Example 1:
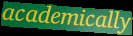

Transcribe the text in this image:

academically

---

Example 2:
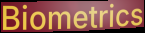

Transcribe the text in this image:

Biometrics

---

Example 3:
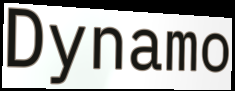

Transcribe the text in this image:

Dynamo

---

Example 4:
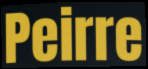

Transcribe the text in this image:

Peirre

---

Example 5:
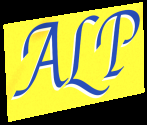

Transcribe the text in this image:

ALP